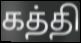
கத்தி